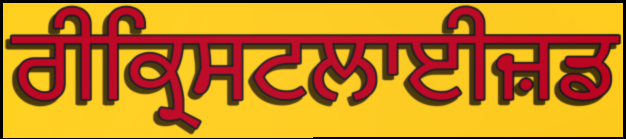
ਰੀਕ੍ਰਿਸਟਲਾਈਜ਼ਡ